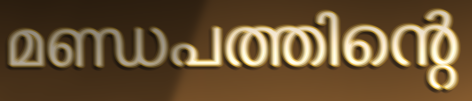
മണ്ഡപത്തിന്റെ